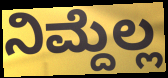
ನಿಮ್ದೆಲ್ಲ